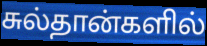
சுல்தான்களில்